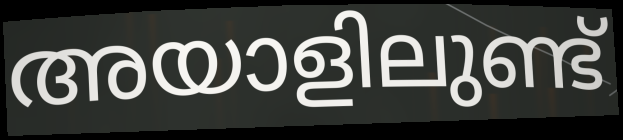
അയാളിലുണ്ട്